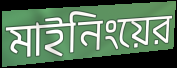
মাইনিংয়ের